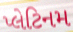
પ્લેટિનમ